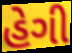
હેગી